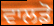
ਵਾਲਡੋ